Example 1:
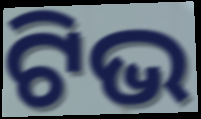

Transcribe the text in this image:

ଟିଭ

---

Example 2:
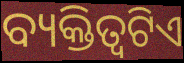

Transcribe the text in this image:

ବ୍ୟକ୍ତିତ୍ବଟିଏ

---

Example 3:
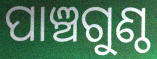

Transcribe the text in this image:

ପାଞ୍ଚଗୁଣ୍ଠ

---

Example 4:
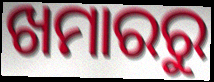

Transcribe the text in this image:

ଖମାରରୁ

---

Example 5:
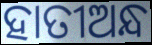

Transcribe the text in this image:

ହାତୀଅନ୍ଧ